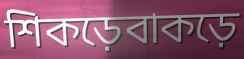
শিকড়েবাকড়ে